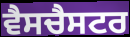
ਵੈਸਚੈਸਟਰ